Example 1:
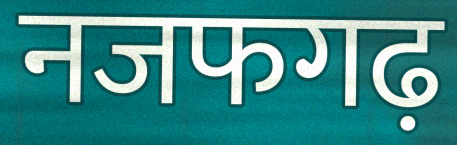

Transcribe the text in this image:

नजफगढ़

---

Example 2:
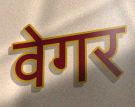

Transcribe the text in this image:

वेगर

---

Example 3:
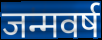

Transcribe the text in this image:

जन्मवर्ष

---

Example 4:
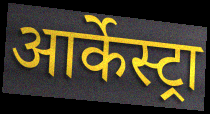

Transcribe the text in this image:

आर्केस्ट्रा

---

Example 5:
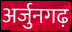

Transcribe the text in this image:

अर्जुनगढ़